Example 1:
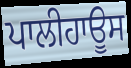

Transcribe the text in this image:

ਪਾਲੀਹਾਊਸ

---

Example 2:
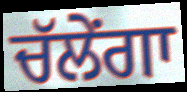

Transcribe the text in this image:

ਚੱਲੇਂਗਾ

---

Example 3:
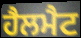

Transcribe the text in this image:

ਹੈਲਮੈਟ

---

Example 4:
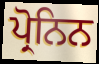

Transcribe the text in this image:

ਪ੍ਰੋਨਿਨ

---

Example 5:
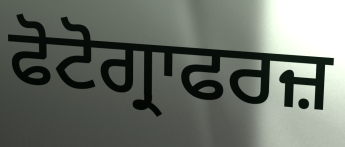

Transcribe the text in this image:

ਫੋਟੋਗ੍ਰਾਫਰਜ਼